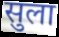
सुला